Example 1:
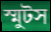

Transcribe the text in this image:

স্মুটস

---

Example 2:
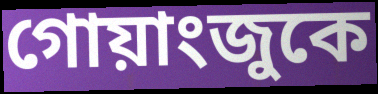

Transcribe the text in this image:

গোয়াংজুকে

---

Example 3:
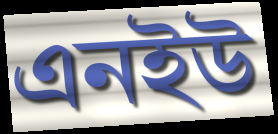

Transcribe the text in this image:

এনইউ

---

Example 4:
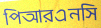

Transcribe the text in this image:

পিআরএনসি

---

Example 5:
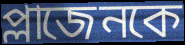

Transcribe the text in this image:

প্লাজেনকে